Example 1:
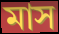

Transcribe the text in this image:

মাস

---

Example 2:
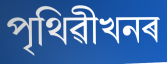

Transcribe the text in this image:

পৃথিৱীখনৰ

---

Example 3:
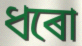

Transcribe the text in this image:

ধৰো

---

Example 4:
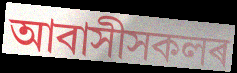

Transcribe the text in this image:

আবাসীসকলৰ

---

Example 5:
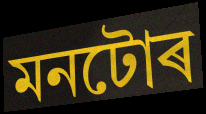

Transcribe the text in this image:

মনটোৰ